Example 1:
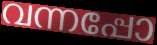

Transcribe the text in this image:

വന്നപ്പോ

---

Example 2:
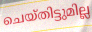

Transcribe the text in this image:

ചെയ്തിട്ടുമില്ല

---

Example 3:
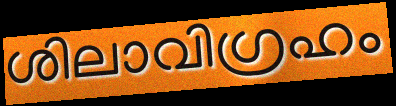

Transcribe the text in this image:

ശിലാവിഗ്രഹം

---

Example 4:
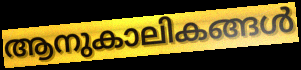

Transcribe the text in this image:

ആനുകാലികങ്ങൾ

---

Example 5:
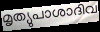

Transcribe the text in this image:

മൃത്യുപാശാദിവ